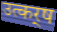
उत्कर्ष